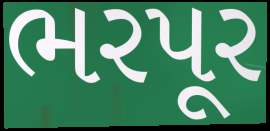
ભરપૂર